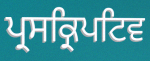
ਪ੍ਰਸਕ੍ਰਿਪਟਿਵ